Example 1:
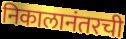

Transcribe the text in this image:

निकालानंतरची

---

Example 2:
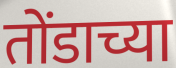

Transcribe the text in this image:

तोंडाच्या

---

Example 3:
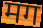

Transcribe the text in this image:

मग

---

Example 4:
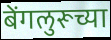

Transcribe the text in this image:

बेंगलुरूच्या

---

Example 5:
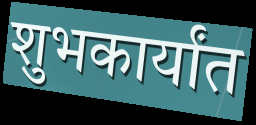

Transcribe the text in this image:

शुभकार्यांत